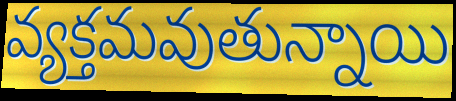
వ్యక్తమవుతున్నాయి